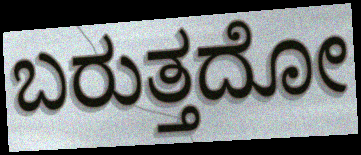
ಬರುತ್ತದೋ